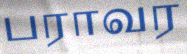
பராவர